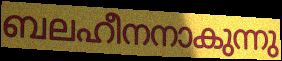
ബലഹീനനാകുന്നു